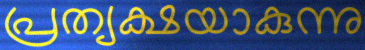
പ്രത്യക്ഷയാകുന്നു